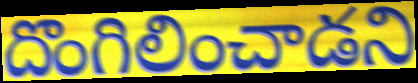
దొంగిలించాడని